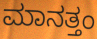
ಮಾನತ್ತಂ